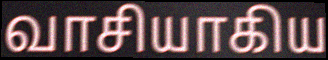
வாசியாகிய